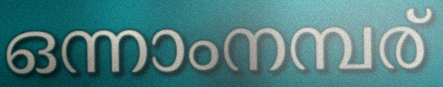
ഒന്നാംനമ്പര്